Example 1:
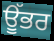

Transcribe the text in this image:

ਊੱਭਰ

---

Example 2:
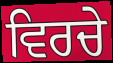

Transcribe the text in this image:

ਵਿਰਚੇ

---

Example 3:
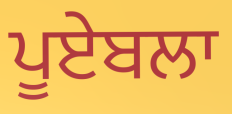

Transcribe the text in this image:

ਪੂਏਬਲਾ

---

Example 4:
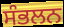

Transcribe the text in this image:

ਸੰਭਲਨ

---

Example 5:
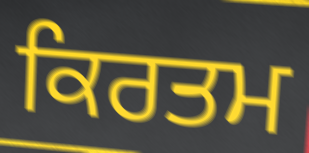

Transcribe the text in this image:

ਕਿਰਤਮ